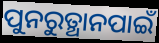
ପୁନରୁତ୍ଥାନପାଇଁ